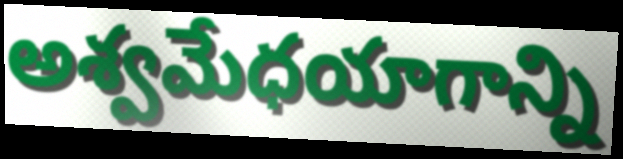
అశ్వమేధయాగాన్ని